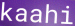
kaahi